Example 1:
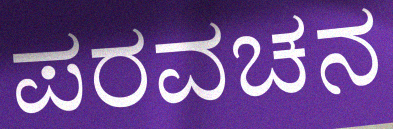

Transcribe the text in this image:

ಪರವಚನ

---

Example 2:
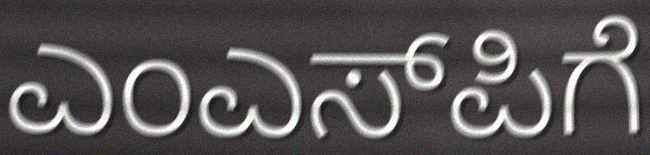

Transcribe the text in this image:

ಎಂಎಸ್‌ಪಿಗೆ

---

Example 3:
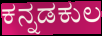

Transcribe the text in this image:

ಕನ್ನಡಕುಲ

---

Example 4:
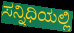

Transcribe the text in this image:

ಸನ್ನಿಧಿಯಲ್ಲಿ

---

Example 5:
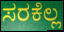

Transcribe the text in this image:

ಸರಕೆಲ್ಲ